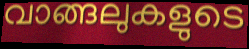
വാങ്ങലുകളുടെ